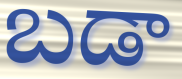
బడా